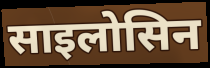
साइलोसिन